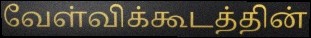
வேள்விக்கூடத்தின்